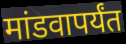
मांडवापर्यंत